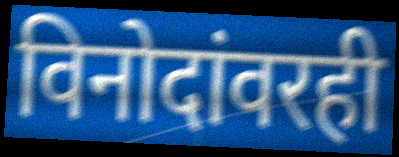
विनोदांवरही